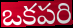
ఒకపరి